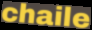
chaile